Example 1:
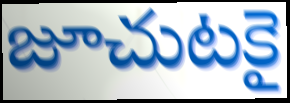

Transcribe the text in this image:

జూచుటకై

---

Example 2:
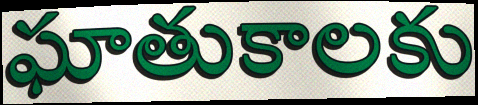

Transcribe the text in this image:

ఘాతుకాలకు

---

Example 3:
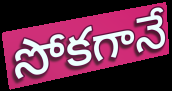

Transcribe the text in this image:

సోకగానే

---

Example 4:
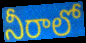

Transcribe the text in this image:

నీరాలో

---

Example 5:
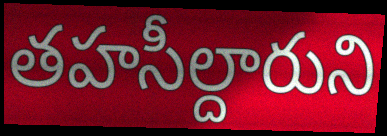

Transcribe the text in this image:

తహసీల్దారుని